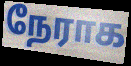
நேராக